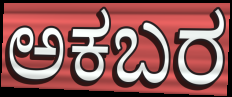
ಅಕಬರ